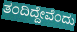
ತಂದಿದ್ದೇವೆಂದು